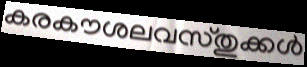
കരകൗശലവസ്തുക്കൾ